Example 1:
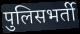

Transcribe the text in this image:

पुलिसभर्ती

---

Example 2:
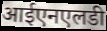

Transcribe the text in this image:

आईएनएलडी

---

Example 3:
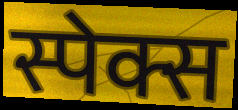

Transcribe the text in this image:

स्पेक्स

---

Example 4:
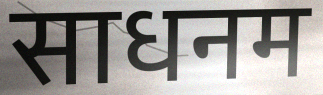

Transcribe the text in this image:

साधनम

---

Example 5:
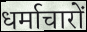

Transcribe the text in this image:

धर्माचारों